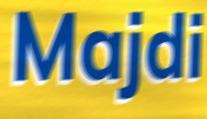
Majdi